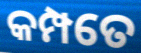
କମ୍ପତେ